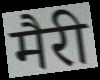
मैरी